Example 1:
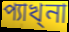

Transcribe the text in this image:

প্যাখ্না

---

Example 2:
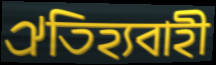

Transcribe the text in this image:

ঐতিহ্যবাহী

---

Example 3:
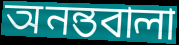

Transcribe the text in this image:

অনন্তবালা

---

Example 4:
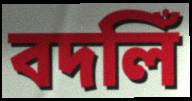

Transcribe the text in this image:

বদলিঁ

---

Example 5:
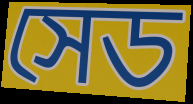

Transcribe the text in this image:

সেড